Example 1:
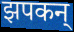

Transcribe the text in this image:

झपकन्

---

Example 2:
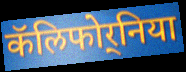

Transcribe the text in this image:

कॅलिफोर्निया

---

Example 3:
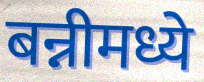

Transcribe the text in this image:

बन्नीमध्ये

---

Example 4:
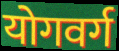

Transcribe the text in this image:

योगवर्ग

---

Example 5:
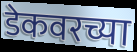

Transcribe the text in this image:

डेकवरच्या